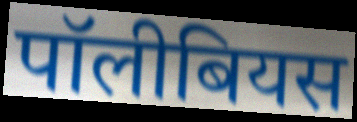
पॉलीबियस